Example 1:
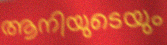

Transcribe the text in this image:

ആനിയുടെയും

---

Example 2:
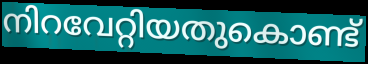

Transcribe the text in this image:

നിറവേറ്റിയതുകൊണ്ട്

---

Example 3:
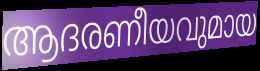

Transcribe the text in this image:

ആദരണീയവുമായ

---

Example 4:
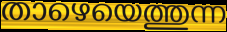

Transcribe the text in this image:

താഴെയെത്തുന്ന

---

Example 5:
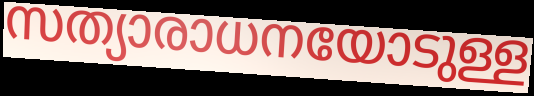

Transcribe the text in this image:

സത്യാരാധനയോടുള്ള